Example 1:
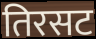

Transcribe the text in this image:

तिरसट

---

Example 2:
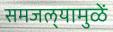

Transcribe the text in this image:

समजल्यामुळें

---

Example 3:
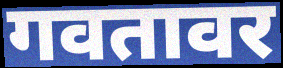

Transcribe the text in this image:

गवतावर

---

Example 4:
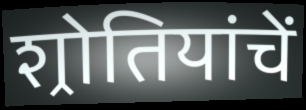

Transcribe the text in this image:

श्रोतियांचें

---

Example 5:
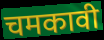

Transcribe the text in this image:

चमकावी